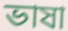
ভাষা